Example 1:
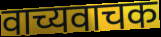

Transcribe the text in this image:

वाच्यवाचक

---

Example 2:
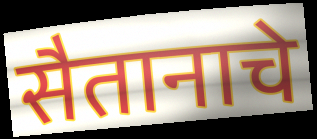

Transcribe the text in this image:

सैतानाचे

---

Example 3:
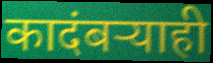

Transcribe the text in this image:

कादंबऱ्याही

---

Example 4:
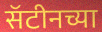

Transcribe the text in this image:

सॅटीनच्या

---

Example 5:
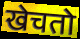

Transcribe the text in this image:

खेचतो